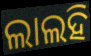
ଲାଲହି